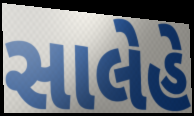
સાલેહે